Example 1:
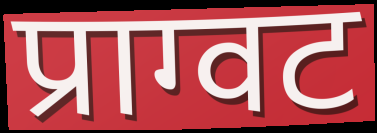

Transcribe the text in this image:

प्राग्वट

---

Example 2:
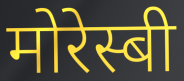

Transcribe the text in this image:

मोरेस्बी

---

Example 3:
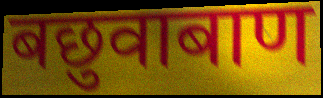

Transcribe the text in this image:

बछुवाबाण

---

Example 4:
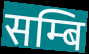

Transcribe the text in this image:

सम्बि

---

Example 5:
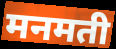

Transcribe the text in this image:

मनमती